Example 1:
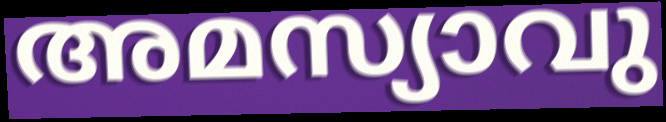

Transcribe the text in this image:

അമസ്യാവു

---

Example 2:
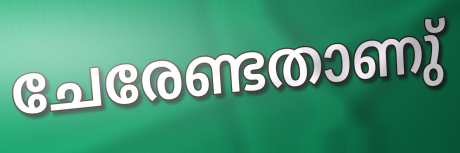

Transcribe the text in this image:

ചേരേണ്ടതാണു്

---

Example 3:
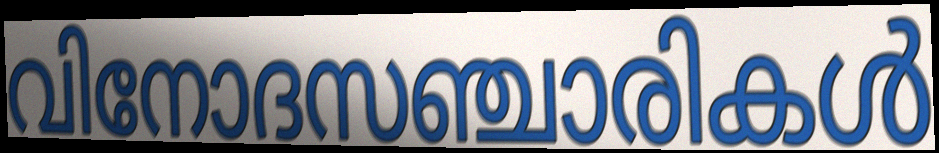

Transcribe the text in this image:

വിനോദസഞ്ചാരികൾ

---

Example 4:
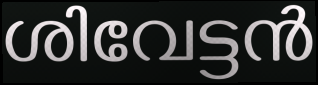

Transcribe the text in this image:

ശിവേട്ടൻ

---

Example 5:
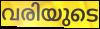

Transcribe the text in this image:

വരിയുടെ